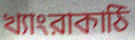
খ্যাংরাকাঠি